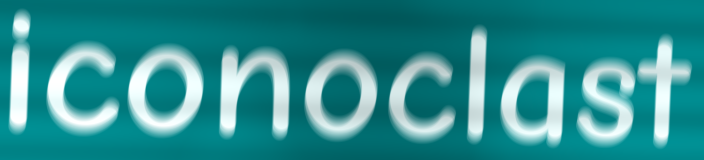
iconoclast